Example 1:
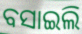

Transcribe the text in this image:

ବସାଇଲି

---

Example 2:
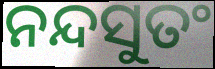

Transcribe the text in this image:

ନନ୍ଦସୁତଂ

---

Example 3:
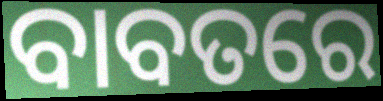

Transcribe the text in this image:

ବାବତରେ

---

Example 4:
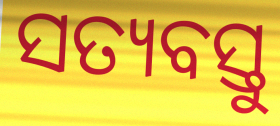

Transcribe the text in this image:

ସତ୍ୟବସ୍ତୁ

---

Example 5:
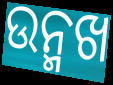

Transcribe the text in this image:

ଉନ୍ମଖ